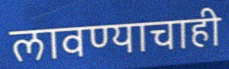
लावण्याचाही